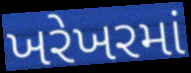
ખરેખરમાં